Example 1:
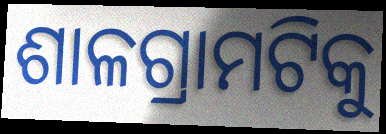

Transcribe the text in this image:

ଶାଳଗ୍ରାମଟିକୁ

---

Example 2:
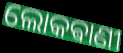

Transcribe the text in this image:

ଲୋକଵାଣୀ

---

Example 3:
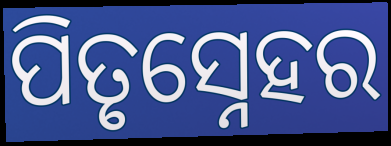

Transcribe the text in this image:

ପିତୃସ୍ନେହର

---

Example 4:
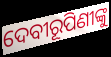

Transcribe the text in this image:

ଦେବୀରୂପିଣୀଙ୍କୁ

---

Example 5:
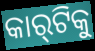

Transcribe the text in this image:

କାର୍‍ଟିକୁ